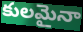
కులమైనా